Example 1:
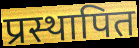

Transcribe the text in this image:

प्रस्थापित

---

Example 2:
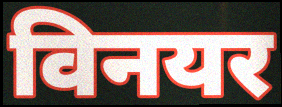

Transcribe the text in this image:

विनयर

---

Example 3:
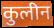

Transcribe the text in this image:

कुलीन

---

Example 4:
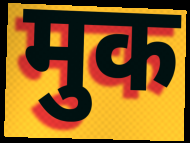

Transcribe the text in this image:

मुक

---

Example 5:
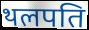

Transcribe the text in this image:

थलपति